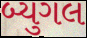
બ્યુગલ